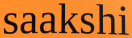
saakshi